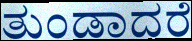
ತುಂಡಾದರೆ